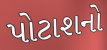
પોટાશનો